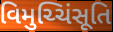
વિમુચ્ચિંસૂતિ